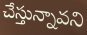
చేస్తున్నావని